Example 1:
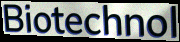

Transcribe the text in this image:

Biotechnol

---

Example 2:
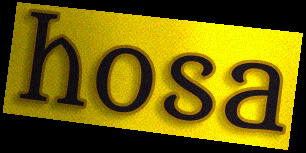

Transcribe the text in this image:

hosa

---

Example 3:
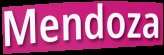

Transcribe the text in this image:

Mendoza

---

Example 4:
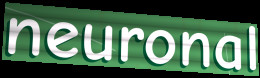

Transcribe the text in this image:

neuronal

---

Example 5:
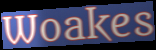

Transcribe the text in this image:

Woakes